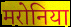
मरोनिया